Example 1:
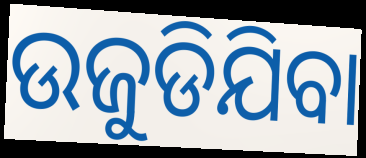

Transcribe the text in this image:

ଉଜୁଡିଯିବା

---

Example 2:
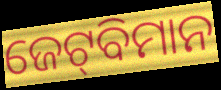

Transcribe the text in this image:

ଜେଟ୍‍ବିମାନ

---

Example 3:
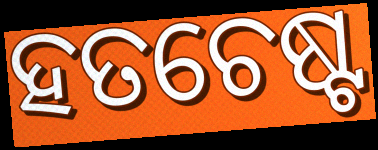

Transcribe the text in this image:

ହତଚେଷ୍ଟ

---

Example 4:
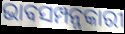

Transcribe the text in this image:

ଭାବସମ୍ପନ୍ନକାରୀ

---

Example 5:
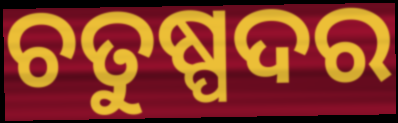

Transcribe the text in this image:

ଚତୁଷ୍ପଦର